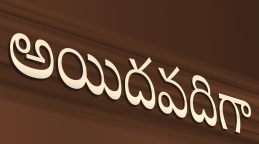
అయిదవదిగా